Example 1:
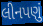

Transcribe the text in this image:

લીનપણું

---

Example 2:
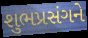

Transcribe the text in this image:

શુભપ્રસંગને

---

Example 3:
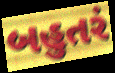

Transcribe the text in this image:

બહુતરં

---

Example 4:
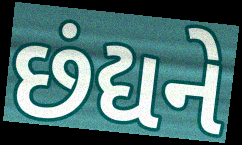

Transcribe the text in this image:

છંદ્યને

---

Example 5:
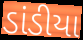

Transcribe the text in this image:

ડાંડીયા